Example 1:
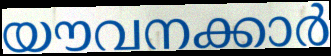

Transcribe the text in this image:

യൗവനക്കാർ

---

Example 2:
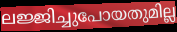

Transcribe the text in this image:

ലജ്ജിച്ചുപോയതുമില്ല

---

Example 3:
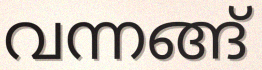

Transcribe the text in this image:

വന്നങ്ങ്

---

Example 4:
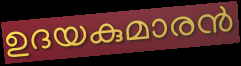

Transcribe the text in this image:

ഉദയകുമാരൻ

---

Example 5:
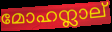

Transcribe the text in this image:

മോഹന്ലാല്